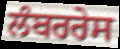
ਲੰਬਰਰੇਸ